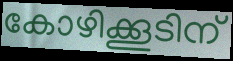
കോഴിക്കൂടിന്